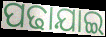
ପଢାଯାଇ